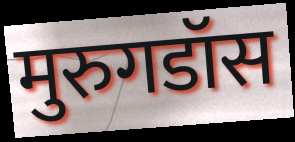
मुरुगडॉस